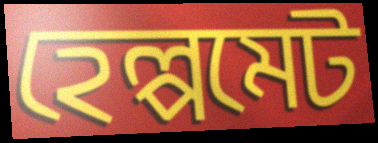
হেল্পমেট